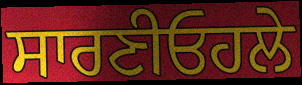
ਸਾਰਣੀਓਹਲੇ